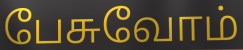
பேசுவோம்